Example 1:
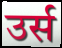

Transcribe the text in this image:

उर्स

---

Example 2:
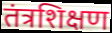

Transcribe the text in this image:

तंत्रशिक्षण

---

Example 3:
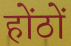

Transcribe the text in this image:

होंठों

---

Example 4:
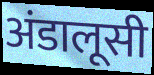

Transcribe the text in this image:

अंडालूसी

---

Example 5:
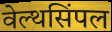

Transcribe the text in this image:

वेल्थसिंपल